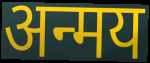
अन्मय